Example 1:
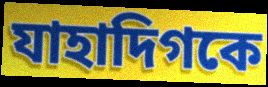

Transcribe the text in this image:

যাহাদিগকে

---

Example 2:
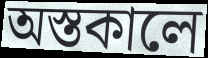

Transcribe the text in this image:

অস্তকালে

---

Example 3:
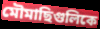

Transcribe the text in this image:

মৌমাছিগুলিকে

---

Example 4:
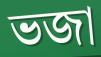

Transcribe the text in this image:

ভজা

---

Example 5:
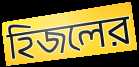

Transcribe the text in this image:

হিজলের